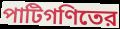
পাটিগণিতের